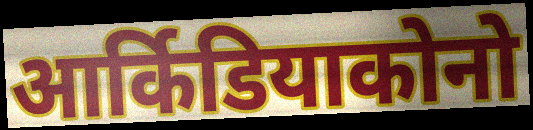
आर्किडियाकोनो